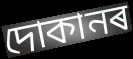
দোকানৰ